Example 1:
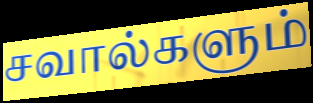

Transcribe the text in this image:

சவால்களும்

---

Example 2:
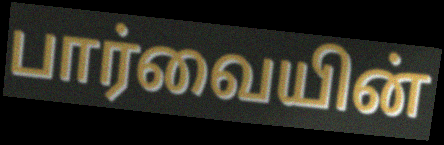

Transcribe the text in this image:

பார்வையின்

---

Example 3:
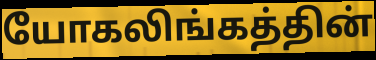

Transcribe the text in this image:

யோகலிங்கத்தின்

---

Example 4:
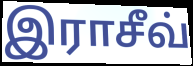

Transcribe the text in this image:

இராசீவ்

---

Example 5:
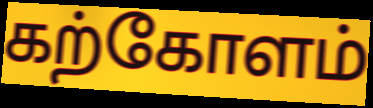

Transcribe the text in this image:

கற்கோளம்